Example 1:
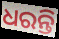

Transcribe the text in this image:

ଧରନ୍ତି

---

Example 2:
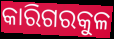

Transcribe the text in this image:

କାରିଗରକୁଳ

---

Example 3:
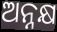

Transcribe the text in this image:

ଅନ୍ନକ୍ଷ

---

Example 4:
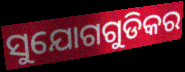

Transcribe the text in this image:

ସୁଯୋଗଗୁଡିକର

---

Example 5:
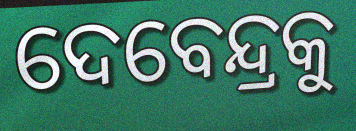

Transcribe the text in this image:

ଦେବେନ୍ଦ୍ରକୁ